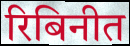
रिबिनीत